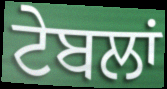
ਟੇਬਲਾਂ